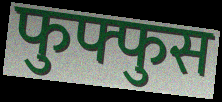
फुफ्फुस